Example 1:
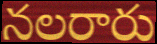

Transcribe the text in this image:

నలరారు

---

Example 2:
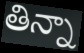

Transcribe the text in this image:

తిన్నా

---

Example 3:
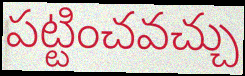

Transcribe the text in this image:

పట్టించవచ్చు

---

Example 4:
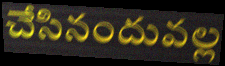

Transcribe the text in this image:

చేసినందువల్ల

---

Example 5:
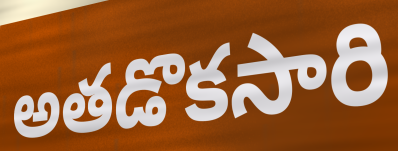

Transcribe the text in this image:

అతడొకసారి